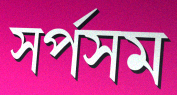
সর্পসম